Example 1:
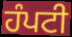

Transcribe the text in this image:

ਹੰਪਟੀ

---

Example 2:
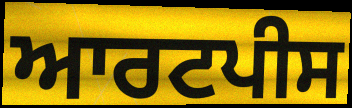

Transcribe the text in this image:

ਆਰਟਪੀਸ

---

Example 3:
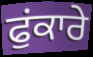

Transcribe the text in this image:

ਫੁਂਕਾਰੇ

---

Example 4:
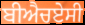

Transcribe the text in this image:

ਬੀਐਚਏਸੀ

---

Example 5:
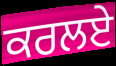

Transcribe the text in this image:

ਕਰਲਏ